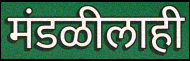
मंडळीलाही